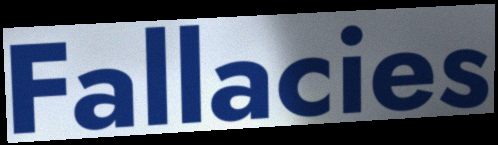
Fallacies